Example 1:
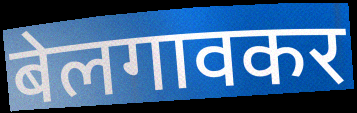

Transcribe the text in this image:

बेलगावकर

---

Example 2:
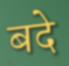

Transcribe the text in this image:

बदे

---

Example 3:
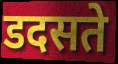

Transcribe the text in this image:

डदसते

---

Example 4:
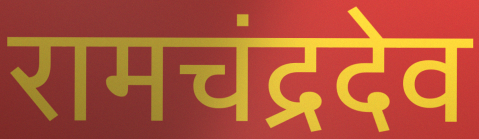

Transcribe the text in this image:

रामचंद्रदेव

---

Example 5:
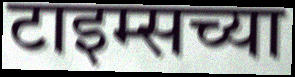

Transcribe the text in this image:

टाइम्सच्या